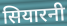
सियारनी